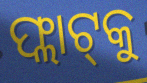
ଫ୍ଲାଟ୍‌କୁ